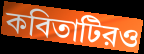
কবিতাটিরও